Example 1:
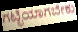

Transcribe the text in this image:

ಗಟ್ಟಿಯಾಗಬೇಕು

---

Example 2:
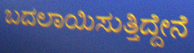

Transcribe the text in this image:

ಬದಲಾಯಿಸುತ್ತಿದ್ದೇನೆ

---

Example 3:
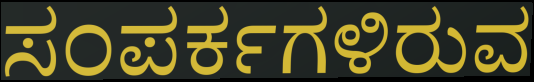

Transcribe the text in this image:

ಸಂಪರ್ಕಗಳಿರುವ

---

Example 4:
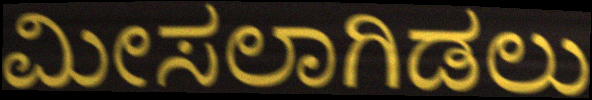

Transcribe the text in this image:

ಮೀಸಲಾಗಿಡಲು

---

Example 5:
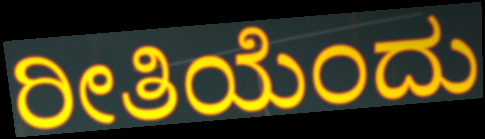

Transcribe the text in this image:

ರೀತಿಯೆಂದು